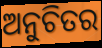
ଅନୁଚିତର